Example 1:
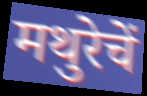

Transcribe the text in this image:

मथुरेचें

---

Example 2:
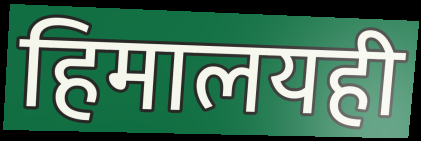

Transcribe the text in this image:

हिमालयही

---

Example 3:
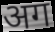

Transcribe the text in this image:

अग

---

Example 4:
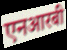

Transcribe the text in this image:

एनआरबी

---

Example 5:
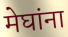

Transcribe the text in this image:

मेघांना